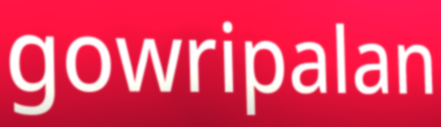
gowripalan